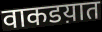
वाकडय़ात